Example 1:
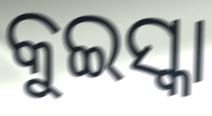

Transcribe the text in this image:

କୁଇସ୍କା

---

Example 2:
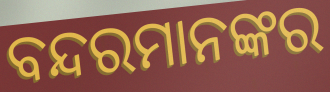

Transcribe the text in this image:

ବନ୍ଦରମାନଙ୍କର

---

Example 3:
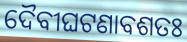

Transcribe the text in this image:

ଦୈବୀଘଟଣାବଶତଃ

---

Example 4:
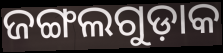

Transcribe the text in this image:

ଜଙ୍ଗଲଗୁଡ଼ାକ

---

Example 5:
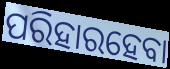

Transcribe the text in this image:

ପରିହାରହେବା